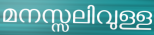
മനസ്സലിവുള്ള